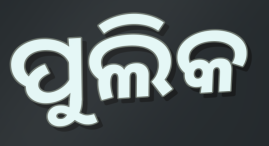
ପୁଲିକ